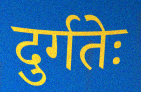
दुर्गतेः